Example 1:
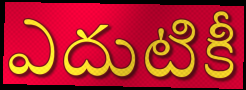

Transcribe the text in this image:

ఎదుటికీ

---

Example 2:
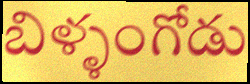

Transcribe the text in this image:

బిళ్ళంగోడు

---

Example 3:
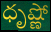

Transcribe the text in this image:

ధృష్ణో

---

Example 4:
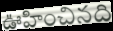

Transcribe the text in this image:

ఊహించినది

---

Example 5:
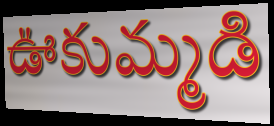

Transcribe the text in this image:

ఊకుమ్మడి